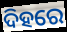
ଦିହରେ